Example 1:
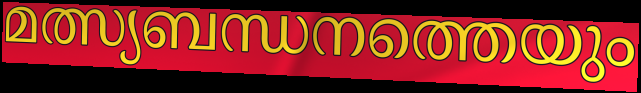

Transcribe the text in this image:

മത്സ്യബന്ധനത്തെയും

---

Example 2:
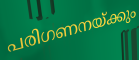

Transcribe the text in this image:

പരിഗണനയ്ക്കും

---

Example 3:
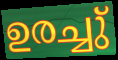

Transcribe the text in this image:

ഉരച്ചു്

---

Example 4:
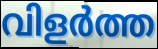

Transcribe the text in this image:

വിളർത്ത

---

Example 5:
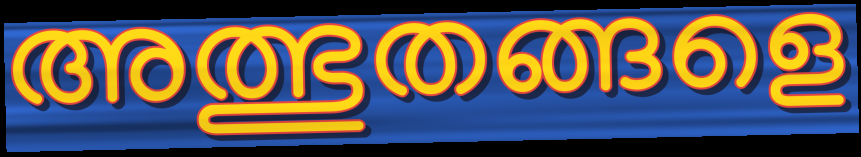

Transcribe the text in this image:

അത്ഭുതങ്ങളെ